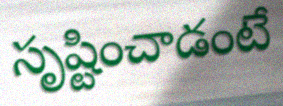
సృష్టించాడంటే